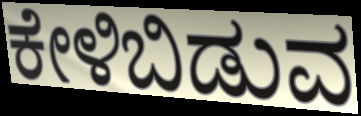
ಕೇಳಿಬಿಡುವ